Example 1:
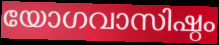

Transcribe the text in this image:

യോഗവാസിഷ്ഠം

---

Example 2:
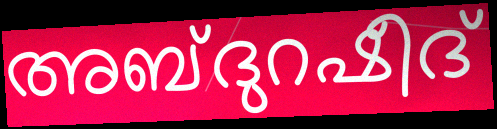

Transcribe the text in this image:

അബ്ദുറഷീദ്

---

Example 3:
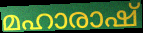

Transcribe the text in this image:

മഹാരാഷ്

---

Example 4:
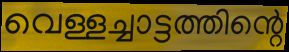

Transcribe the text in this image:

വെള്ളച്ചാട്ടത്തിന്റെ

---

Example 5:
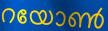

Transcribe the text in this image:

റയോൺ